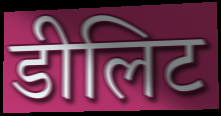
डीलिट